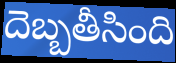
దెబ్బతీసింది